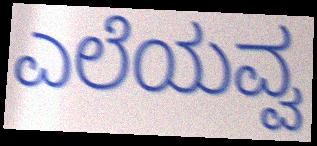
ಎಲೆಯವ್ವ